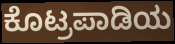
ಕೊಟ್ರಪಾಡಿಯ